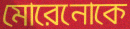
মোরেনোকে